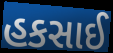
હકસાઈ